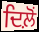
ਦਿਲ਼ੋਂ